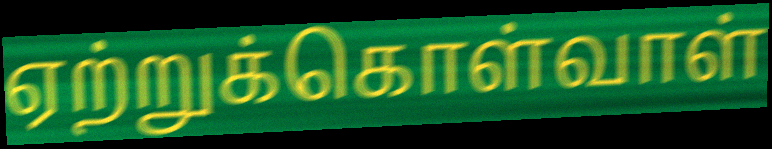
ஏற்றுக்கொள்வாள்